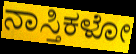
ನಾಸ್ತಿಕಳೋ